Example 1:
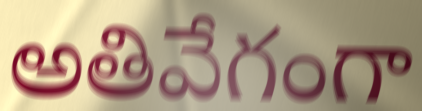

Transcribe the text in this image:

అతివేగంగా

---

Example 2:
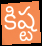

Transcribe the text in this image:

కిష్ట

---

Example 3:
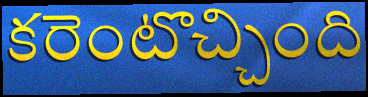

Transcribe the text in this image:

కరెంటొచ్చింది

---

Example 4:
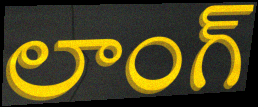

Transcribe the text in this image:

లాంగ్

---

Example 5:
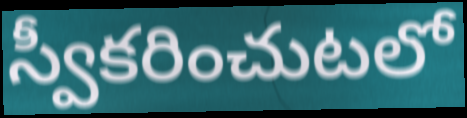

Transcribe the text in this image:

స్వీకరించుటలో